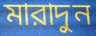
মারাদুন